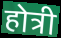
होत्री